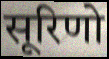
सूरिणो